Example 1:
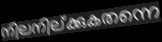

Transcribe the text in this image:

നിലനില്ക്കുകതന്നെ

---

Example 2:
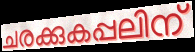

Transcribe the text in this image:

ചരക്കുകപ്പലിന്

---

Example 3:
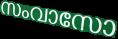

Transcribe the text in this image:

സംവാസോ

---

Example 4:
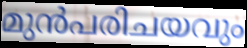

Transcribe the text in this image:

മുൻപരിചയവും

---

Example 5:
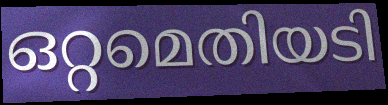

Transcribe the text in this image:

ഒറ്റമെതിയടി